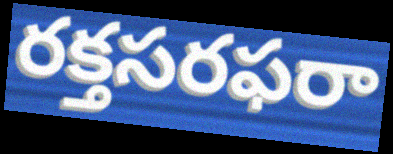
రక్తసరఫరా